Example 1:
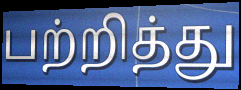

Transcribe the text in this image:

பற்றித்து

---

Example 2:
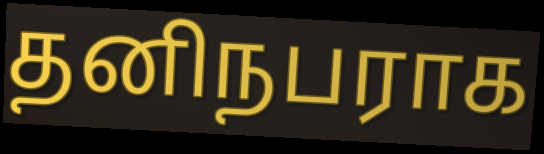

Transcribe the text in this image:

தனிநபராக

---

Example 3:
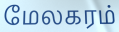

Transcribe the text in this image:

மேலகரம்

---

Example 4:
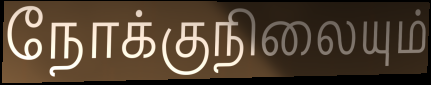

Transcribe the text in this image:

நோக்குநிலையும்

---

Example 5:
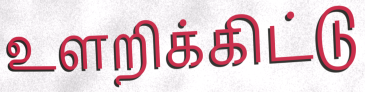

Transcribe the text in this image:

உளறிக்கிட்டு